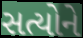
સત્યોને